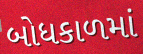
બોધકાળમાં